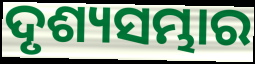
ଦୃଶ୍ୟସମ୍ଭାର